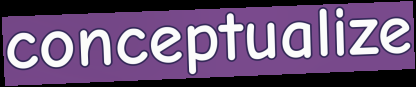
conceptualize